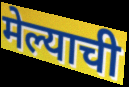
मेल्याची